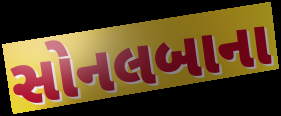
સોનલબાના